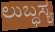
ಲುಬ್ಧಸ್ಯ